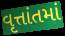
વૃત્તાંતમાં